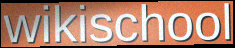
wikischool